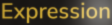
Expression